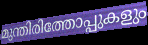
മുന്തിരിത്തോപ്പുകളും